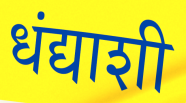
धंद्याशी